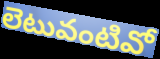
లెటువంటివో